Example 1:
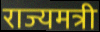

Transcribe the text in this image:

राज्यमत्री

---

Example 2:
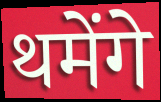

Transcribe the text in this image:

थमेंगे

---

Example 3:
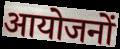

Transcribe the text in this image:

आयोजनों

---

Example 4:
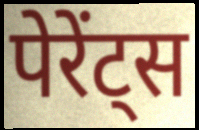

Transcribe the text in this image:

पेरेंट्स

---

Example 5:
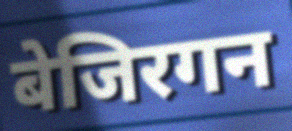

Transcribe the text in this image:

बेजिरगन